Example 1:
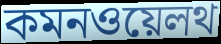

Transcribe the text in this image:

কমনওয়েলথ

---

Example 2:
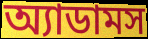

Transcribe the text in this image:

অ্যাডামস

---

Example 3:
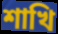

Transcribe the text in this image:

শাখি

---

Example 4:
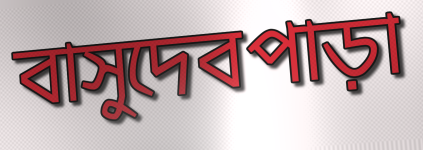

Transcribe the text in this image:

বাসুদেবপাড়া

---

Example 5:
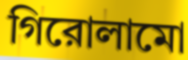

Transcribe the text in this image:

গিরোলামো